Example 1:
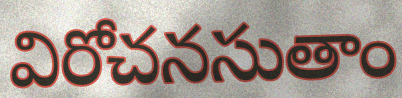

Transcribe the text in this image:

విరోచనసుతాం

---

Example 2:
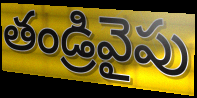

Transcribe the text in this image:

తండ్రివైపు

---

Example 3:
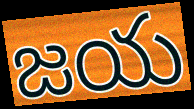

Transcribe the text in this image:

జయ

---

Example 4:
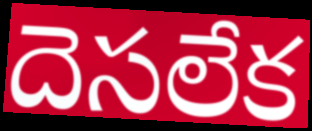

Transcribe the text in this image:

దెసలేక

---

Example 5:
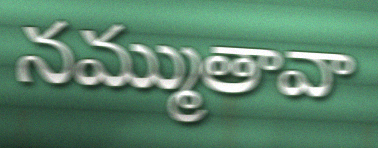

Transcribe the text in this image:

నమ్ముతావా